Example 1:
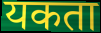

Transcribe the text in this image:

यकता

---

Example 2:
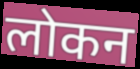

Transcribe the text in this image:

लोकन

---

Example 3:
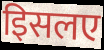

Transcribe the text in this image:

इिसलए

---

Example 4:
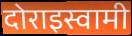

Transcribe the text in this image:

दोराइस्वामी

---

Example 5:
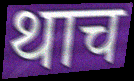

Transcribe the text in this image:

थाच